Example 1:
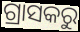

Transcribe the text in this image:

ଗ୍ରାସକରୁ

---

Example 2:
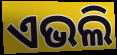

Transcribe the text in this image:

ଏଭଲି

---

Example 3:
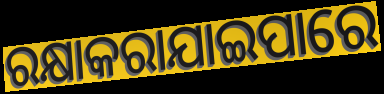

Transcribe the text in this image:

ରକ୍ଷାକରାଯାଇପାରେ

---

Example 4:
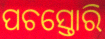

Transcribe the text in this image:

ପଚସ୍ତୋରି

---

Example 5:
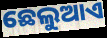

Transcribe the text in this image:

ଛେଲୁଆଏ